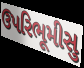
ઉપરિભૂમીસુ